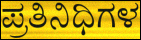
ಪ್ರತಿನಿಧಿಗಳ